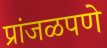
प्रांजळपणे